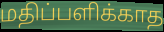
மதிப்பளிக்காத